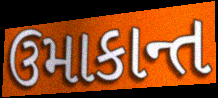
ઉમાકાન્ત